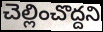
చెల్లించొద్దని